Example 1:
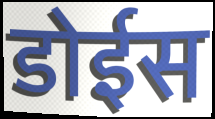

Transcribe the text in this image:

डोईस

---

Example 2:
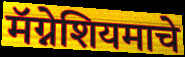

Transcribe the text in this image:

मॅग्नेशियमाचे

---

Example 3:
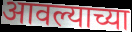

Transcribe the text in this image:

आवल्याच्या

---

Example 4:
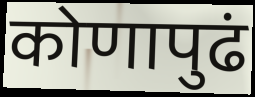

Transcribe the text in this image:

कोणापुढं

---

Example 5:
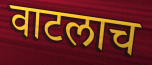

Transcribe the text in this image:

वाटलाच